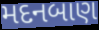
મદનબાણ